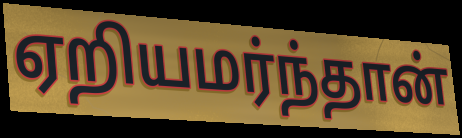
ஏறியமர்ந்தான்